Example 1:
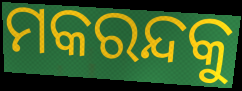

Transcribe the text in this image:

ମକରନ୍ଦକୁ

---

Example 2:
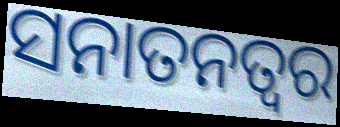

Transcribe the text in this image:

ସନାତନତ୍ୱର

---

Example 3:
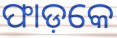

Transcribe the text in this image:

ଫାଡ଼କେ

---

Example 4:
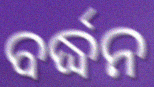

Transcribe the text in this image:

ବର୍ଦ୍ଧନ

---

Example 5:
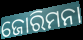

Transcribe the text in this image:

ଜୋରିମନା